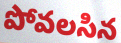
పోవలసిన